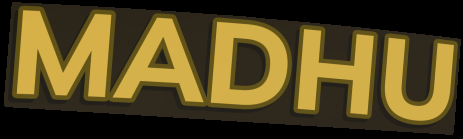
MADHU